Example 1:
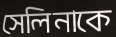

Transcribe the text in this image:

সেলিনাকে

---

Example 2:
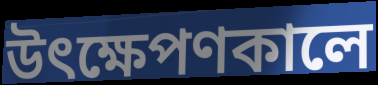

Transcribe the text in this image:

উৎক্ষেপণকালে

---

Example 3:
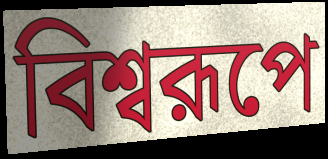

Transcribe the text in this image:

বিশ্বরূপে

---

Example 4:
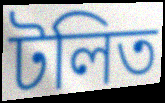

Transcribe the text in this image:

টলিত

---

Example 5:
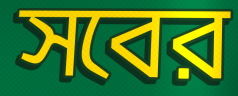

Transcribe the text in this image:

সবের